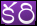
కరి